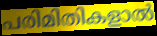
പരിമിതികളാൽ